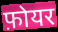
फ़ोयर